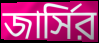
জার্সির